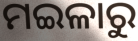
ମଇଳାରୁ